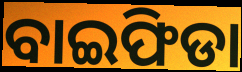
ବାଇଫିଡା